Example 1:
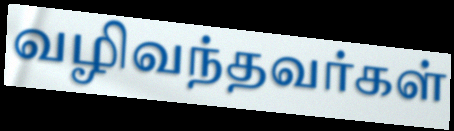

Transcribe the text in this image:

வழிவந்தவர்கள்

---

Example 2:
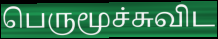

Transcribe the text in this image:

பெருமூச்சுவிட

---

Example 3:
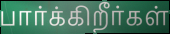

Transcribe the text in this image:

பார்க்கிறீர்கள்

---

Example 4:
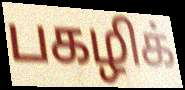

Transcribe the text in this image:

பகழிக்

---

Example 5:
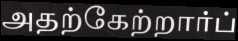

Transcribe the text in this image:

அதற்கேற்றார்ப்